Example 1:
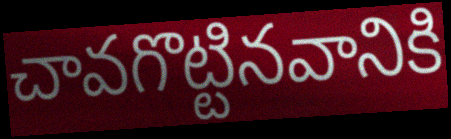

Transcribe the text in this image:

చావగొట్టినవానికి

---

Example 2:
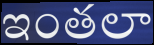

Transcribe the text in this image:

ఇంతలా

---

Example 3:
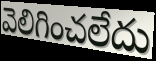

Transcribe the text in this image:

వెలిగించలేదు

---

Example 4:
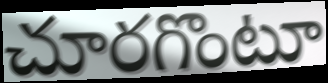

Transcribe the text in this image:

చూరగొంటూ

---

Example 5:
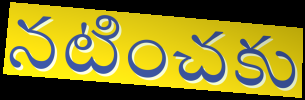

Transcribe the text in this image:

నటించకు